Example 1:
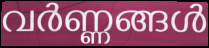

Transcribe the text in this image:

വർണ്ണങ്ങൾ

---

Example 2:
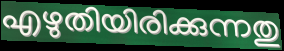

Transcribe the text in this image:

എഴുതിയിരിക്കുന്നതു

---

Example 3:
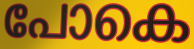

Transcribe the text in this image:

പോകെ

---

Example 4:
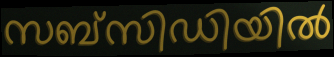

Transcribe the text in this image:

സബ്സിഡിയിൽ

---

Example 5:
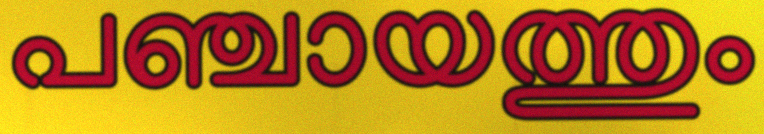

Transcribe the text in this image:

പഞ്ചായത്തും